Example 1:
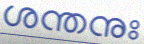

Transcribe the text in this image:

ശന്തനുഃ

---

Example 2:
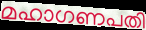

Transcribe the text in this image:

മഹാഗണപതി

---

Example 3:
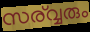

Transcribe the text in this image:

സര്വ്വരും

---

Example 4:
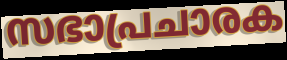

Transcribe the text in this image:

സഭാപ്രചാരക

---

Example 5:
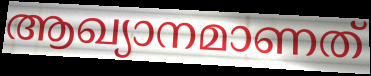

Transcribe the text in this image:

ആഖ്യാനമാണത്